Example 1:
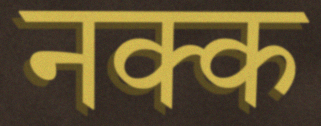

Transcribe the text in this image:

नक्क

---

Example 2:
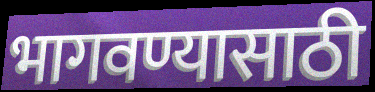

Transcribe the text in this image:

भागवण्यासाठी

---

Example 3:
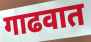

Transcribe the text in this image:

गाढवात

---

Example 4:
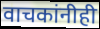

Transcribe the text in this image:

वाचकांनीही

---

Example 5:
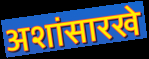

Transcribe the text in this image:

अशांसारखे